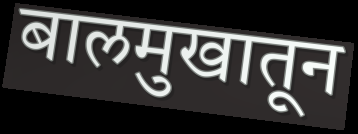
बालमुखातून